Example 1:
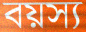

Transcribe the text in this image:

বয়স্য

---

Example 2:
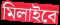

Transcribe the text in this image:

মিলাইবে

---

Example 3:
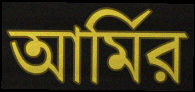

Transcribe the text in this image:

আর্মির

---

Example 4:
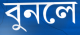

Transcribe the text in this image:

বুনলে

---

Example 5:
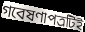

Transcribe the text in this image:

গবেষণাপত্রটিই